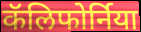
कॅलिफोर्निया